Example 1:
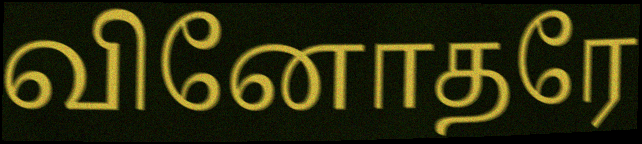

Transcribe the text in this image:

வினோதரே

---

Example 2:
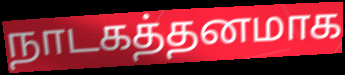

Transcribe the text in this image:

நாடகத்தனமாக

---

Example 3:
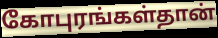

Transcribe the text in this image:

கோபுரங்கள்தான்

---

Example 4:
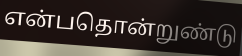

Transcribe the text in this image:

என்பதொன்றுண்டு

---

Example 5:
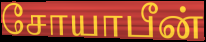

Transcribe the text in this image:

சோயாபீன்